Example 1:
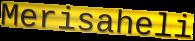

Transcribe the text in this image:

Merisaheli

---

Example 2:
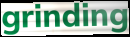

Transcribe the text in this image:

grinding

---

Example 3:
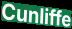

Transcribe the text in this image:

Cunliffe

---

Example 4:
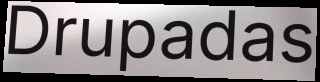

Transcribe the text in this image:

Drupadas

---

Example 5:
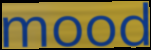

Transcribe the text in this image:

mood